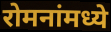
रोमनांमध्ये